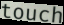
touch